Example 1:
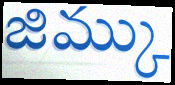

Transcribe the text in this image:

జిమ్కు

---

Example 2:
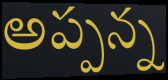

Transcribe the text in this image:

అప్పన్న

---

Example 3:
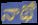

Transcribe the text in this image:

నాథో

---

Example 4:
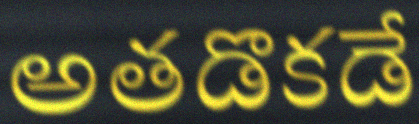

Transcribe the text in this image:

అతడొకడే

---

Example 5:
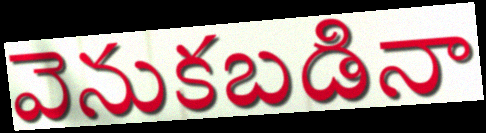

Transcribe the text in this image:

వెనుకబడినా